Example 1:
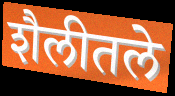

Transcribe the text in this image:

शैलीतले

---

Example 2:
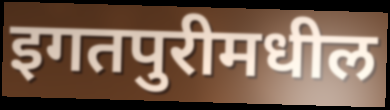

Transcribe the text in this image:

इगतपुरीमधील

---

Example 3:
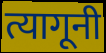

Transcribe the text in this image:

त्यागूनी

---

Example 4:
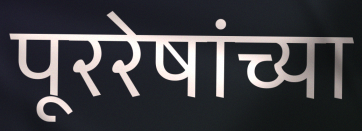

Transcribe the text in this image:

पूररेषांच्या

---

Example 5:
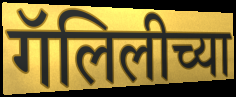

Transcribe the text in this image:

गॅलिलीच्या